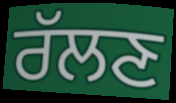
ਰੱਲਣ